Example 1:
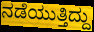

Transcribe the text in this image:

ನಡೆಯುತ್ತಿದ್ದು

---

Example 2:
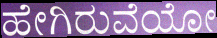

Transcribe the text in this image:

ಹೇಗಿರುವೆಯೋ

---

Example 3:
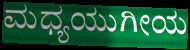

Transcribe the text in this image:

ಮಧ್ಯಯುಗೀಯ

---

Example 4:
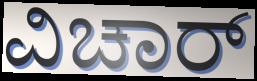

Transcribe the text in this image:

ವಿಚಾರ್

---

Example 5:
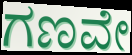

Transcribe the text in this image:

ಗಣವೇ